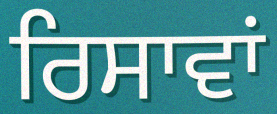
ਰਿਸਾਵਾਂ